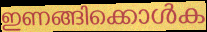
ഇണങ്ങിക്കൊൾക